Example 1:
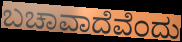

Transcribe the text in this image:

ಬಚಾವಾದೆವೆಂದು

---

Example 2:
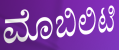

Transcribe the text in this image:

ಮೊಬಿಲಿಟಿ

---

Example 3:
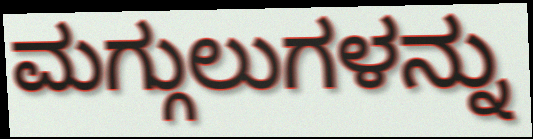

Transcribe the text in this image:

ಮಗ್ಗುಲುಗಳನ್ನು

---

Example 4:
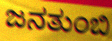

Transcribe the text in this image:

ಜನತುಂಬಿ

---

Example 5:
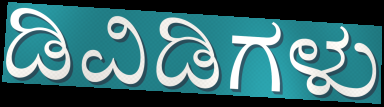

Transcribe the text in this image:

ಡಿವಿಡಿಗಳು